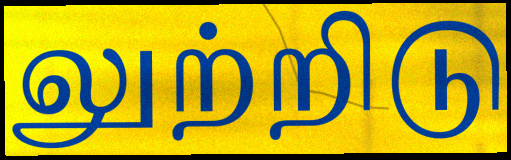
லுற்றிடு